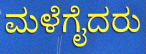
ಮಳೆಗೈದರು